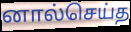
னால்செய்த